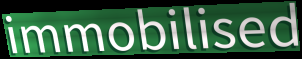
immobilised